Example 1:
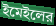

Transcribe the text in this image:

ইমেইলের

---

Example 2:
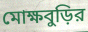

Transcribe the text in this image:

মোক্ষবুড়ির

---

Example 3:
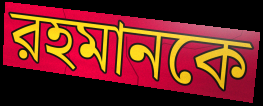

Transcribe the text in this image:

রহমানকে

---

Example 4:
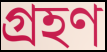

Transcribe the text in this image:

গ্রহণ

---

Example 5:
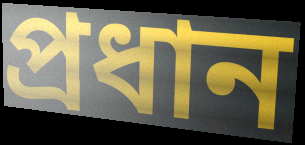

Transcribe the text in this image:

প্রধান